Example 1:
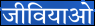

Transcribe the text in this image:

जीवियाओ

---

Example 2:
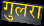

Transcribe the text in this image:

गुलरा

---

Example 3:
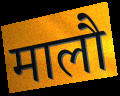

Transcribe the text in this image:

मालौ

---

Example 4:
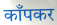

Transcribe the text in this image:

काँपकर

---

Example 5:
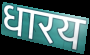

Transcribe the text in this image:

धारय